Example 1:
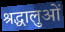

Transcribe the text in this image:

श्रद्धालुओं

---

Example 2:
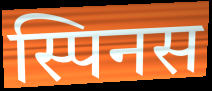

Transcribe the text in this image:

स्पिनस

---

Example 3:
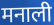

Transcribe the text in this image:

मनाली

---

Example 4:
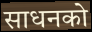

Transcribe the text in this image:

साधनको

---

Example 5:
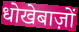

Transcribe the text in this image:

धोखेबाज़ों